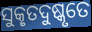
ସୁକୃତଦୁଷ୍କୃତେ